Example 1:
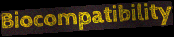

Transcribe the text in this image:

Biocompatibility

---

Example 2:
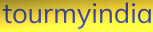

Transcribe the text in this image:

tourmyindia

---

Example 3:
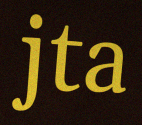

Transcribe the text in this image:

jta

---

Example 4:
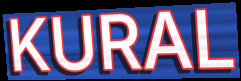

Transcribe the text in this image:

KURAL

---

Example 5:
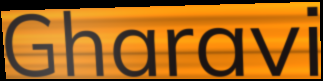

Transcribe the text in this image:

Gharavi